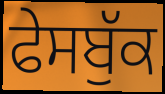
ਫੇਸਬੁੱਕ